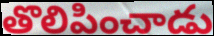
తొలిపించాడు